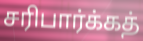
சரிபார்க்கத்